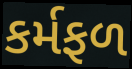
કર્મફળ